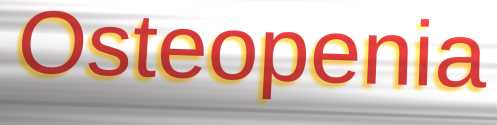
Osteopenia